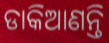
ଡାକିଆଣନ୍ତି